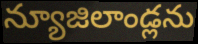
న్యూజిలాండ్లను